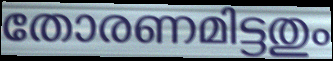
തോരണമിട്ടതും